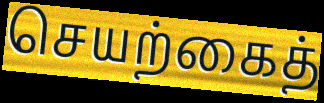
செயற்கைத்